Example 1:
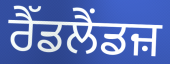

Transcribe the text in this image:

ਰੈੱਡਲੈਂਡਜ਼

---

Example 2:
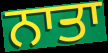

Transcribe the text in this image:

ਨਾਤਾ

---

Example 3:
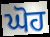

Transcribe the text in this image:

ਘੋਹ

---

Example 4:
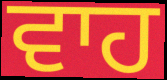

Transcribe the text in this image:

ਵਾਹ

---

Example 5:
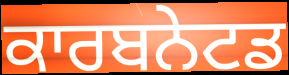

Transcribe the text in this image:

ਕਾਰਬਨੇਟਡ